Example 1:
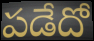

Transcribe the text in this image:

పడేదో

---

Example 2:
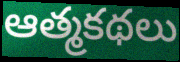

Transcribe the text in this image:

ఆత్మకథలు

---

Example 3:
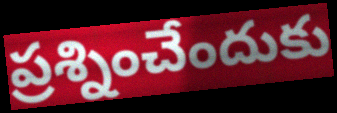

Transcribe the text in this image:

ప్రశ్నించేందుకు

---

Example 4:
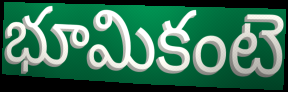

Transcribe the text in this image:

భూమికంటె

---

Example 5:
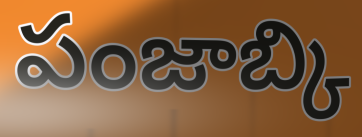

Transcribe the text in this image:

పంజాబ్కి